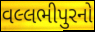
વલ્લભીપુરનો